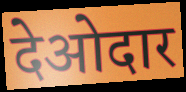
देओदार